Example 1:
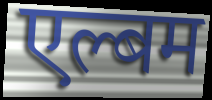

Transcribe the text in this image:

एल्बम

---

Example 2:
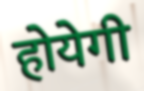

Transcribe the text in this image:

होयेगी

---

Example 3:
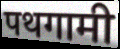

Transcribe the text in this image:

पथगामी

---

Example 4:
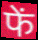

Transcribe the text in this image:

फें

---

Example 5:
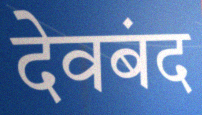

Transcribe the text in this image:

देवबंद